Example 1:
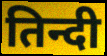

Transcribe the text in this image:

तिन्दी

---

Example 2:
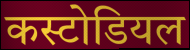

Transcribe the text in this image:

कस्टोडियल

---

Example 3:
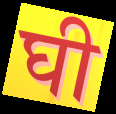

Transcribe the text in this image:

घी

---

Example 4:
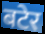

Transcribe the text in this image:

बटेर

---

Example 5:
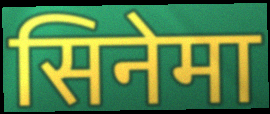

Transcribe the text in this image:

सिनेमा